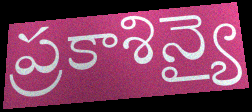
ప్రకాశిన్యై